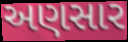
અણસાર